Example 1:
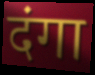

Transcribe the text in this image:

दंगा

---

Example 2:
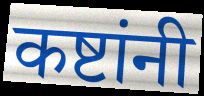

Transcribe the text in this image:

कष्टांनी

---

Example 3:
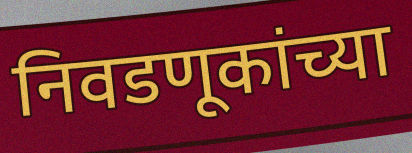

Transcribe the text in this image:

निवडणूकांच्या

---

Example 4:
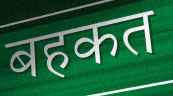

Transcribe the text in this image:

बहकत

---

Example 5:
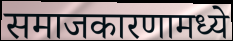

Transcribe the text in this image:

समाजकारणामध्ये